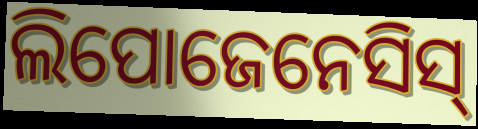
ଲିପୋଜେନେସିସ୍